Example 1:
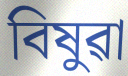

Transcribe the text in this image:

বিষুৱা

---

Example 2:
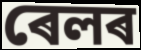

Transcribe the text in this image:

ৰেলৰ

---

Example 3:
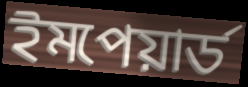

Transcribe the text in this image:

ইমপেয়াৰ্ড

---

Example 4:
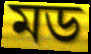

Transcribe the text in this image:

মড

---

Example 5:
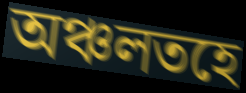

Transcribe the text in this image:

অঞ্চলতহে